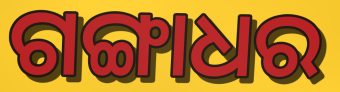
ଗଙ୍ଗାଧର